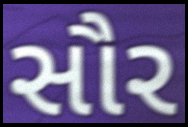
સૌર